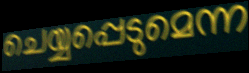
ചെയ്യപ്പെടുമെന്ന